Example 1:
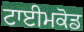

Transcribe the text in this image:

ਟਾਈਮਕੋਡ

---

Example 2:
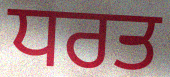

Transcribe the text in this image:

ਧਰਤ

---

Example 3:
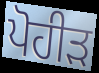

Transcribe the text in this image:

ਪੋਹੀੜ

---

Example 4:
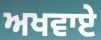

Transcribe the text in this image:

ਅਖਵਾਏ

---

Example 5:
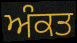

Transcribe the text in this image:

ਅੰਕਤ